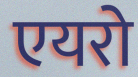
एयरो